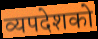
व्यपदेशको